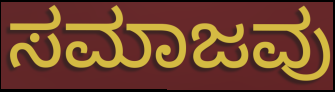
ಸಮಾಜವು